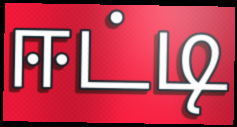
ஈட்டி